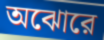
অঝোরে